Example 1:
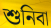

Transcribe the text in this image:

শুনিবা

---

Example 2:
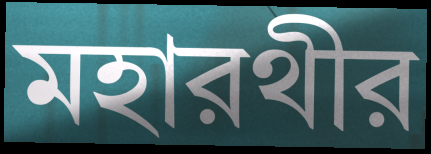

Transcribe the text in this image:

মহারথীর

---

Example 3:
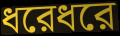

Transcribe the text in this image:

ধরেধরে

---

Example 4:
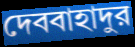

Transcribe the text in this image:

দেববাহাদুর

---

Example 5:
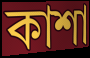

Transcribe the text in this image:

কাশা